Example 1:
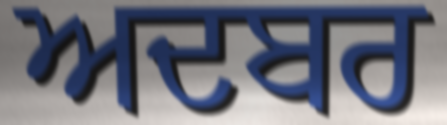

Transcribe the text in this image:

ਅਦਬਰ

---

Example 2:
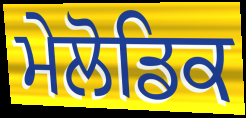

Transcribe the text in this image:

ਮੇਲੋਡਿਕ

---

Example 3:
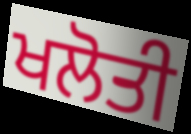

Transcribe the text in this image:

ਖਲੋਤੀ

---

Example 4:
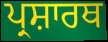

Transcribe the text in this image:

ਪ੍ਰਸ਼ਾਰਥ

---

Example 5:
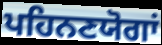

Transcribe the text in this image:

ਪਹਿਨਣਯੋਗਾਂ